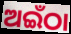
ଅଇଁଠା